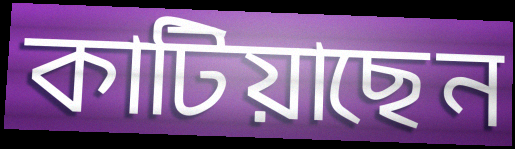
কাটিয়াছেন